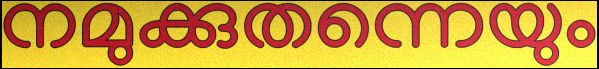
നമുക്കുതന്നെയും